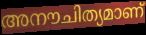
അനൗചിത്യമാണ്